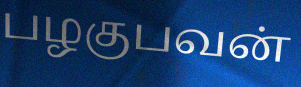
பழகுபவன்